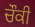
ਚੌਕੀ